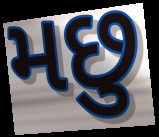
મછુ